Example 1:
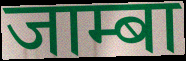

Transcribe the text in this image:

जाम्बा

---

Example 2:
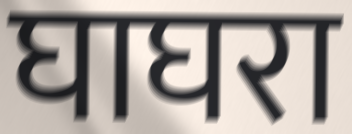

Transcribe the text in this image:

घाघरा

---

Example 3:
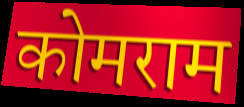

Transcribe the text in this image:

कोमराम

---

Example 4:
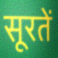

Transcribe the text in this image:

सूरतें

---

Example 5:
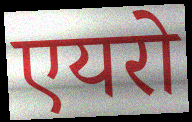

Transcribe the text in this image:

एयरो